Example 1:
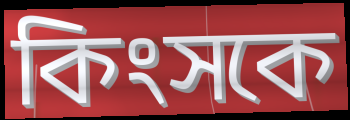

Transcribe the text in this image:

কিংসকে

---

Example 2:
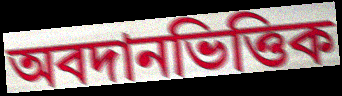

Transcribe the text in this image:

অবদানভিত্তিক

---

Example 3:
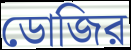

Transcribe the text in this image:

ডোজির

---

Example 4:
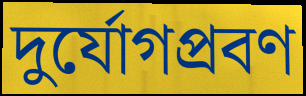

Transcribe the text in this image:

দুর্যোগপ্রবণ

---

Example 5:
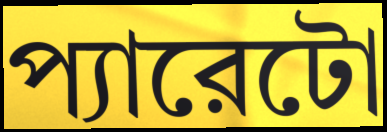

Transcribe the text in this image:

প্যারেটো